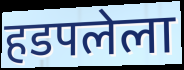
हडपलेला